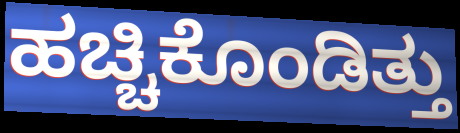
ಹಚ್ಚಿಕೊಂಡಿತ್ತು